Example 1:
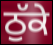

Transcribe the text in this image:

ਠੁੱਕੇ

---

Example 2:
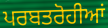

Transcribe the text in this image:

ਪਰਬਤਰੋਹੀਆਂ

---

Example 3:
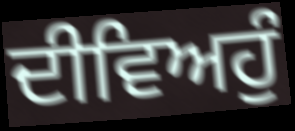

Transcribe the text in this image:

ਦੀਵਿਅਹੁੰ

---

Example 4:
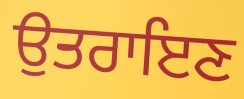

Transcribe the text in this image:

ਉਤਰਾਇਣ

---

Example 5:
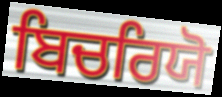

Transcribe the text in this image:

ਬਿਚਰਿਯੋ